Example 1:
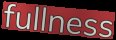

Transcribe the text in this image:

fullness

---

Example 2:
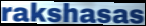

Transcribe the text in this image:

rakshasas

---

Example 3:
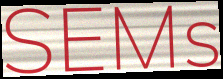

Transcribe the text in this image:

SEMs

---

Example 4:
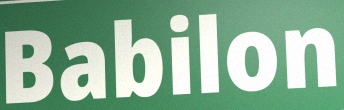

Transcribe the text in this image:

Babilon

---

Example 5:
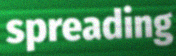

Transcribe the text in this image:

spreading